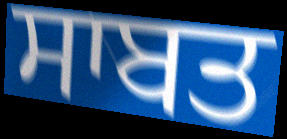
ਸਾਬਤ